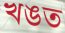
খঙত